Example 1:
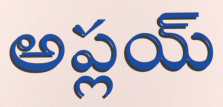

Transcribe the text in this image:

అప్లయ్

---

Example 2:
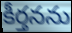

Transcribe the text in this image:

కీర్తనను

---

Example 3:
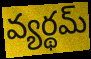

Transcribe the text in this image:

వ్యర్థమ్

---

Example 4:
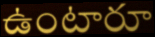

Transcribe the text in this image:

ఉంటారూ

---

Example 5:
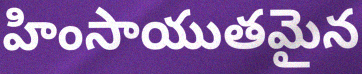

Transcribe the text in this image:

హింసాయుతమైన